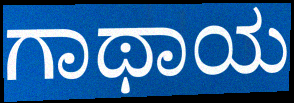
ಗಾಥಾಯ